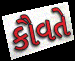
કૌવતે